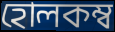
হোলকম্ব